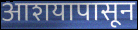
आशयापासून